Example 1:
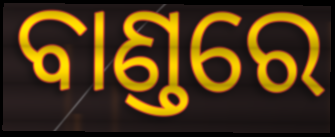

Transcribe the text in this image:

ବାଣ୍ଡରେ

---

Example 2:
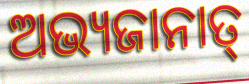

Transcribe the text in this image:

ଅଭ୍ୟଜାନାତ୍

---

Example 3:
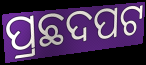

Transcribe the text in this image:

ପ୍ରଛଦପଟ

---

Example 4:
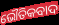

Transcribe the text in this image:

ଭୌତିକବାଦ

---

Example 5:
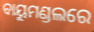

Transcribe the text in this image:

ବାୟୁମଣ୍ଡଲରେ